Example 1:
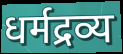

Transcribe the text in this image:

धर्मद्रव्य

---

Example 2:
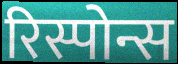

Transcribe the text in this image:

रिस्पोन्स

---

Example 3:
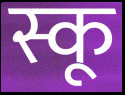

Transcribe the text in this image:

स्कू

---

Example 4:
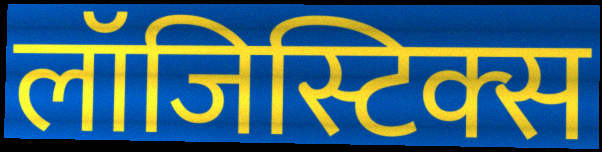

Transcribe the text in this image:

लॉजिस्टिक्‍स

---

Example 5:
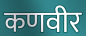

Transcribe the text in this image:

कणवीर